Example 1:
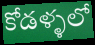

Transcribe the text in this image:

కోడళ్ళలో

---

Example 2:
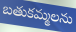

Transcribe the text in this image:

బతుకమ్మలను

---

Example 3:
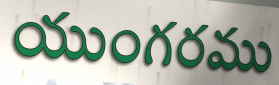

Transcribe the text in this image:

యుంగరము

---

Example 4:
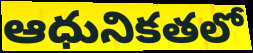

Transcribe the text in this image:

ఆధునికతలో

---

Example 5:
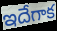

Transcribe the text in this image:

ఇదేగాక